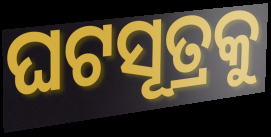
ଘଟସୂତ୍ରକୁ